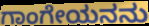
ಗಾಂಗೇಯನನು